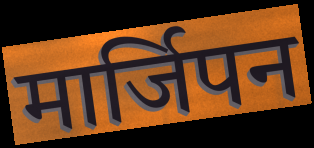
मार्जिपन